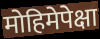
मोहिमेपेक्षा